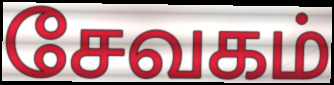
சேவகம்